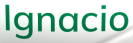
Ignacio